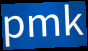
pmk